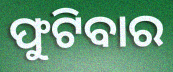
ଫୁଟିବାର